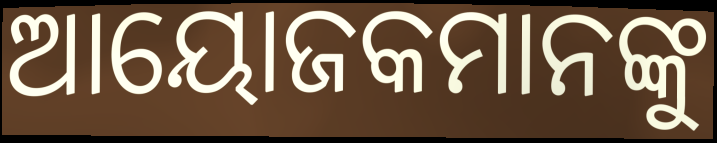
ଆୟୋଜକମାନଙ୍କୁ